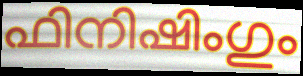
ഫിനിഷിംഗും